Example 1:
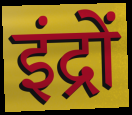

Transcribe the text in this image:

इंद्रों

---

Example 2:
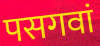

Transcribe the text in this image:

पसगवां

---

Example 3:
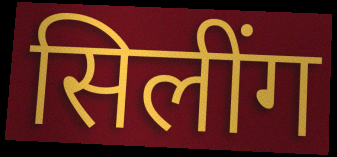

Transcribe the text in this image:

सिलींग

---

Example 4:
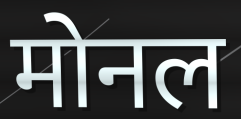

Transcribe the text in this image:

मोनल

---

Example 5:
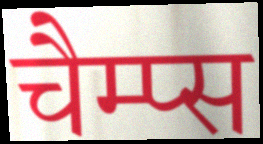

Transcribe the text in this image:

चैम्प्स